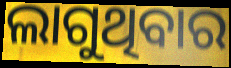
ଲାଗୁଥିବାର